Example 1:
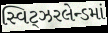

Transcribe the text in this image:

સ્વિટ્ઝરલેન્ડમાં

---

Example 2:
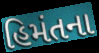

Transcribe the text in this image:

હિમંતના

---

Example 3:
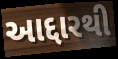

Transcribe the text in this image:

આદ્દારથી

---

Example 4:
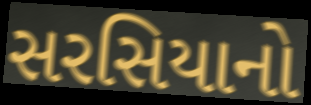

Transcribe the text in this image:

સરસિયાનો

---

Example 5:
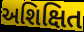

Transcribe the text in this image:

અશિક્ષિત